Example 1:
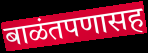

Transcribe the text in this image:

बाळंतपणासह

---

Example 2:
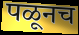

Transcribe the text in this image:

पळूनच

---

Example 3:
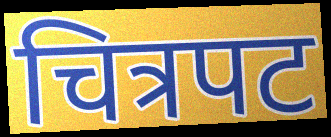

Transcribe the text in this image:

चित्रपट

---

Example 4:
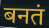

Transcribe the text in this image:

बनतं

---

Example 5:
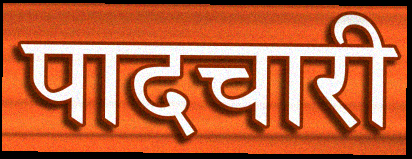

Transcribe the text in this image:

पादचारी